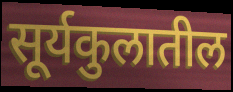
सूर्यकुलातील